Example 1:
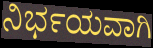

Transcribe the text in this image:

ನಿರ್ಭಯವಾಗಿ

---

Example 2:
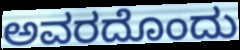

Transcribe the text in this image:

ಅವರದೊಂದು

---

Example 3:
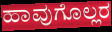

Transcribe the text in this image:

ಹಾವುಗೊಲ್ಲರ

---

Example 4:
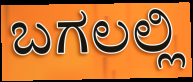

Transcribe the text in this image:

ಬಗಲಲ್ಲಿ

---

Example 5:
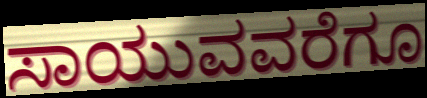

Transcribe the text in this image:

ಸಾಯುವವರೆಗೂ